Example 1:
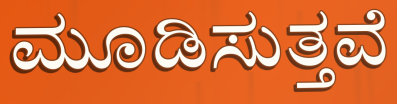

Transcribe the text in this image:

ಮೂಡಿಸುತ್ತವೆ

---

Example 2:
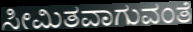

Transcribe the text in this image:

ಸೀಮಿತವಾಗುವಂತೆ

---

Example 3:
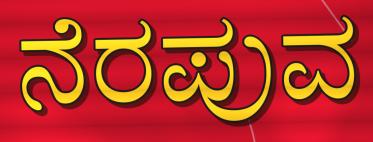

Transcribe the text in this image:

ನೆರಪುವ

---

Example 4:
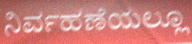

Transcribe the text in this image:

ನಿರ್ವಹಣೆಯಲ್ಲೂ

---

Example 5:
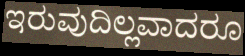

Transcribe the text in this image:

ಇರುವುದಿಲ್ಲವಾದರೂ